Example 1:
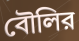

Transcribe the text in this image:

বৌলির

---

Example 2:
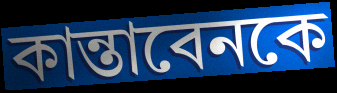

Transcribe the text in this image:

কান্তাবেনকে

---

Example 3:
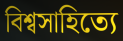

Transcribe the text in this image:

বিশ্বসাহিত্যে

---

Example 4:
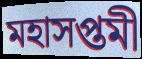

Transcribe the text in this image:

মহাসপ্তমী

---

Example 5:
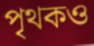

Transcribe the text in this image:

পৃথকও